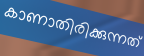
കാണാതിരിക്കുന്നത്